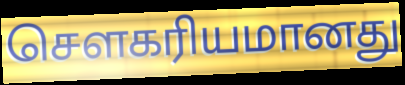
சௌகரியமானது